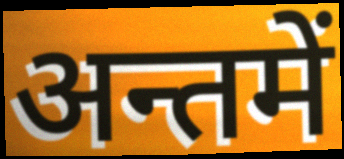
अन्तमें